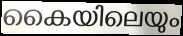
കൈയിലെയും